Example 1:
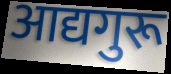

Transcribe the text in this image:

आद्यगुरू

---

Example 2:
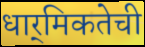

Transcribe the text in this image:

धार्मिकतेची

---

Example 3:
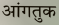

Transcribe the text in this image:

आंगतुक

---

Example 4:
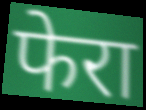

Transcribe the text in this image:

फेरा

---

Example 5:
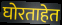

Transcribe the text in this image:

घोरताहेत